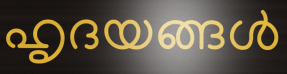
ഹൃദയങ്ങൾ